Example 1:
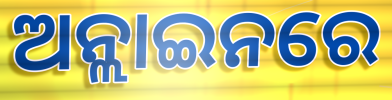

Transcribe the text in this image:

ଅନ୍ଲାଇନରେ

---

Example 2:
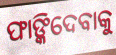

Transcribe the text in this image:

ଫାଙ୍କିଦେବାକୁ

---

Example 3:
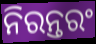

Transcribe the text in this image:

ନିରନ୍ତରଂ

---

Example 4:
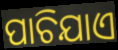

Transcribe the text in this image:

ପାଚିଯାଏ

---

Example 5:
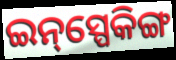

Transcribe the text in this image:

ଇନ୍‌ସ୍ପେକିଙ୍ଗ